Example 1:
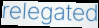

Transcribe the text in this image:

relegated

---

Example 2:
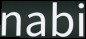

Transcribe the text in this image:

nabi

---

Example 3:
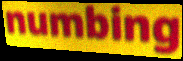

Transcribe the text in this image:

numbing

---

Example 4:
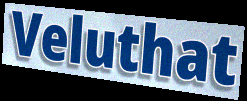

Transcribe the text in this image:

Veluthat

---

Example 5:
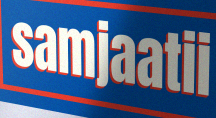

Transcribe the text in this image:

samjaatii